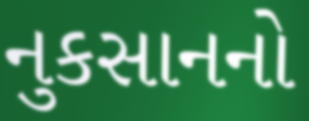
નુકસાનનો